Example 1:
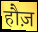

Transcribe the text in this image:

हौज़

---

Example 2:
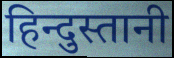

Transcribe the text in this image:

हिन्‍दुस्‍तानी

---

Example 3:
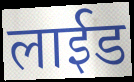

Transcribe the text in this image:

लाईड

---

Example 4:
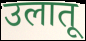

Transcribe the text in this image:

उलातू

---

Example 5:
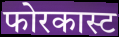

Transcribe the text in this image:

फोरकास्ट